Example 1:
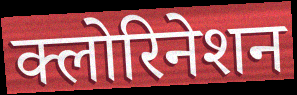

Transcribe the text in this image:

क्लोरिनेशन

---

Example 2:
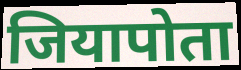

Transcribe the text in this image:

जियापोता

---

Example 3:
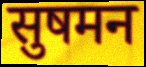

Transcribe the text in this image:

सुषमन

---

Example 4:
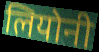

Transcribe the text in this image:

लियोनी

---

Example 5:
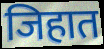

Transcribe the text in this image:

जिहात